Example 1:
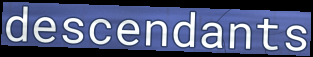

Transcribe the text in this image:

descendants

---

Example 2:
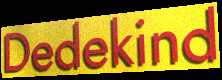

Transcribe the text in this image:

Dedekind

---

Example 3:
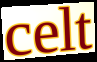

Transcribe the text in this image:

celt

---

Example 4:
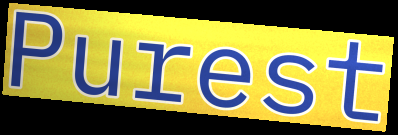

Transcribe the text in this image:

Purest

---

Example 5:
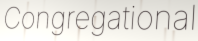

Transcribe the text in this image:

Congregational